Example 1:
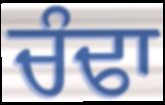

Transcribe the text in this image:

ਚੰਢਾ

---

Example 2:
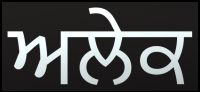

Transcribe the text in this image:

ਅਲੇਕ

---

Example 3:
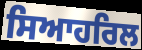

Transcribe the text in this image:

ਸਿਆਹਰਿਲ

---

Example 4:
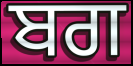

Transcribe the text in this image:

ਬਗ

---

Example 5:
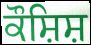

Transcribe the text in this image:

ਕੌਸ਼ਿਸ਼